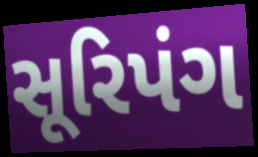
સૂરિપંગ